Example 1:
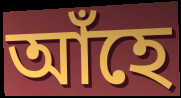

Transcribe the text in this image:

আঁহে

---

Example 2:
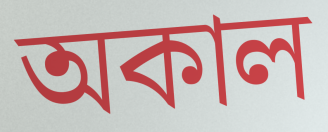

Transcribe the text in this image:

অকাল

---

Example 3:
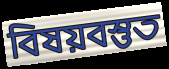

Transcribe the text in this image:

বিষয়বস্তুত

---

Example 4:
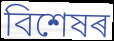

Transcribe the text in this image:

বিশেষৰ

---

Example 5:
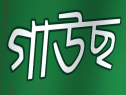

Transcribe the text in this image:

গাউছ